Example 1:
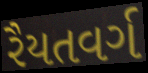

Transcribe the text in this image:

રૈયતવર્ગ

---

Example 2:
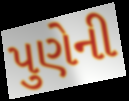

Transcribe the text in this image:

પુણેની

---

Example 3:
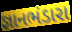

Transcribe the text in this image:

જ્ઞાનભંડારા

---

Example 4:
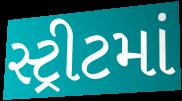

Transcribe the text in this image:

સ્ટ્રીટમાં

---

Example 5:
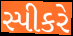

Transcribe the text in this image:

સ્પીકરે